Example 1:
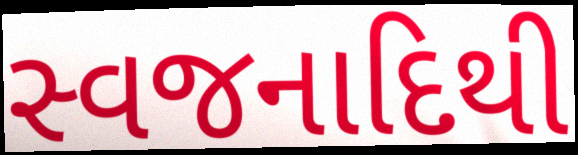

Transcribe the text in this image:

સ્વજનાદિથી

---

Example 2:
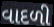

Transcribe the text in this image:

વાદળી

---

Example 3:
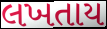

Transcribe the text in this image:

લખતાય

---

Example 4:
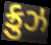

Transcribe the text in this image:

ક્રુઝ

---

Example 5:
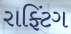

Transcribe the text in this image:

રાફ્ટિંગ